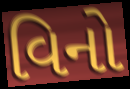
વિનો